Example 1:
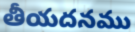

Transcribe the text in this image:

తీయదనము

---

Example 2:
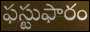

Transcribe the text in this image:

ఫస్టుఫారం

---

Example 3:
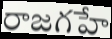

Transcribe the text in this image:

రాజగహే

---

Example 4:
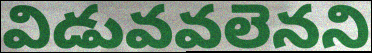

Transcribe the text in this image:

విడువవలెనని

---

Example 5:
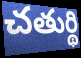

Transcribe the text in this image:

చతుర్థి